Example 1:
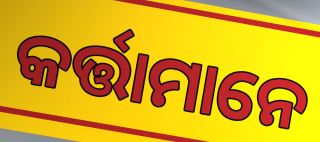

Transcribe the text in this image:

କର୍ତ୍ତାମାନେ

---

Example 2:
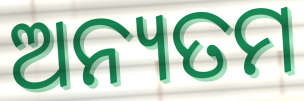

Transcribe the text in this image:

ଅନ୍ୟତମ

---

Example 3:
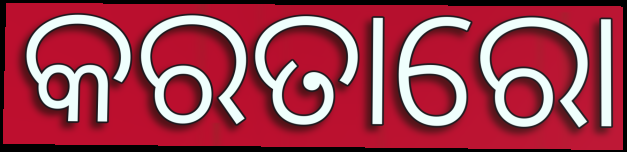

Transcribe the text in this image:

କରତାରୋ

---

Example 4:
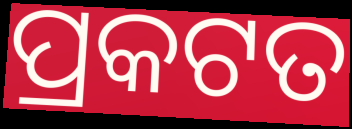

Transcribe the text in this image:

ପ୍ରକଟତ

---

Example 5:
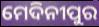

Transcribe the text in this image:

ମେଦିନୀପୁର